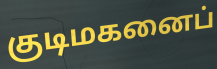
குடிமகனைப்